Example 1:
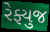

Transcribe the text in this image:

રેફ્યુજ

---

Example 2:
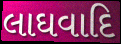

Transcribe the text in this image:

લાઘવાદિ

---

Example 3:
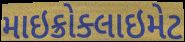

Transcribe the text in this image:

માઇક્રોક્લાઇમેટ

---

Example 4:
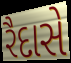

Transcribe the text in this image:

રૈદાસે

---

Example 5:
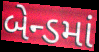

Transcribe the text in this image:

બેન્ડમાં